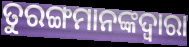
ତୁରଙ୍ଗମାନଙ୍କଦ୍ୱାରା